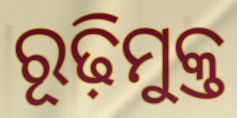
ରୂଢ଼ିମୁକ୍ତ